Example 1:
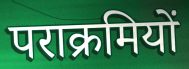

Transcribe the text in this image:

पराक्रमियों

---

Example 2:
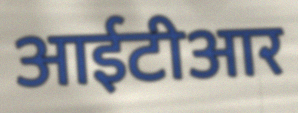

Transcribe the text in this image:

आईटीआर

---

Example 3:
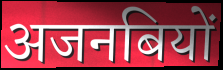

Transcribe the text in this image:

अजनबियों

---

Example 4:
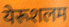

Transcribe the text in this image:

येरूशलम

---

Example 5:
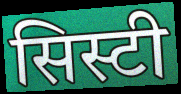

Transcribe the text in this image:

सिस्टी